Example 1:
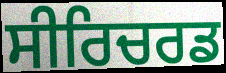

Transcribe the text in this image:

ਸੀਰਿਚਰਡ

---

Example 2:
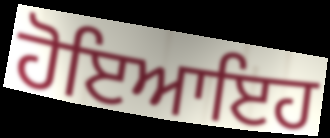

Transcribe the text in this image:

ਹੋਇਆਇਹ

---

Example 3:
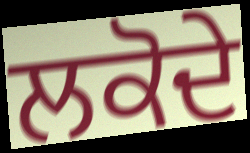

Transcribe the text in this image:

ਲਕੋਦੇ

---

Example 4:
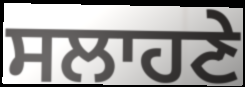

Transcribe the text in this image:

ਸਲਾਹਣੇ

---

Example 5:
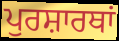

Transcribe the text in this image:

ਪੁਰਸ਼ਾਰਥਾਂ